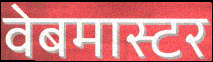
वेबमास्टर